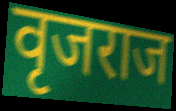
वृजराज